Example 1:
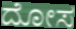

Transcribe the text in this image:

ದೋಸ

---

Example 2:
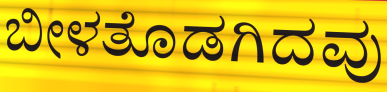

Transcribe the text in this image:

ಬೀಳತೊಡಗಿದವು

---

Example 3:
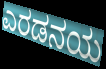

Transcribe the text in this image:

ಎರಡನಯ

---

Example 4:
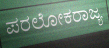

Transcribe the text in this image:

ಪರಲೋಕರಾಜ್ಯ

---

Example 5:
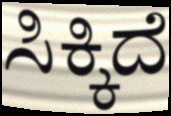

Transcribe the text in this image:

ಸಿಕ್ಕಿದೆ